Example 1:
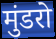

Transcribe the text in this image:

मुंडरो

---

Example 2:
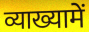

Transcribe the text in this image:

व्याख्यामें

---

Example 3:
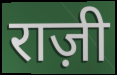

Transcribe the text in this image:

राज़ी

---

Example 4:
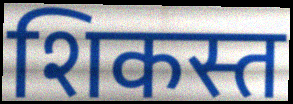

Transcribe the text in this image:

शिकस्त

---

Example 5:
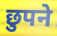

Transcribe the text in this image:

छुपने